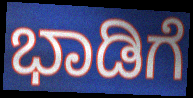
ಭಾಡಿಗೆ